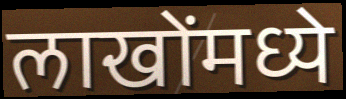
लाखोंमध्ये